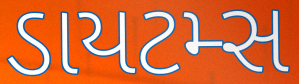
ડાયટમ્સ